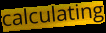
calculating